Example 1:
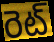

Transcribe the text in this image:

రెట్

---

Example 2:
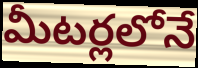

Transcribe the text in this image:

మీటర్లలోనే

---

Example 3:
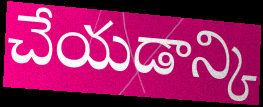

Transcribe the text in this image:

చేయడాన్కి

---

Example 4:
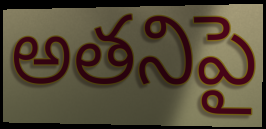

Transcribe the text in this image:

అతనిపై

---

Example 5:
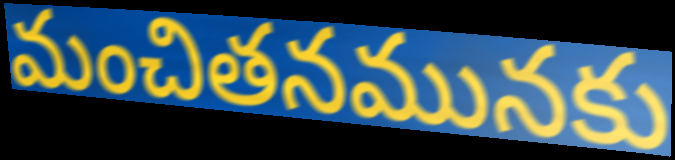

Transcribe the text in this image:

మంచితనమునకు